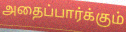
அதைப்பார்க்கும்